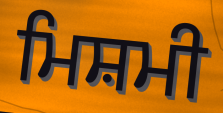
ਮਿਸ਼ਮੀ